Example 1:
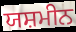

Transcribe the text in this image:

ਯਸ਼ਮੀਨ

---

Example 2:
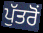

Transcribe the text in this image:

ਪੁੱਤਰੋਂ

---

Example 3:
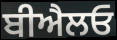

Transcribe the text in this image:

ਬੀਐਲਓ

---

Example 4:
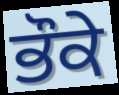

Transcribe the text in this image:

ਭੌਕੇ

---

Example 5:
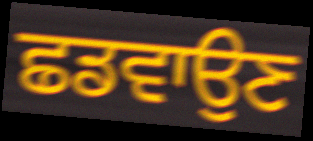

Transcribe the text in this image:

ਛਡਵਾਉਣ